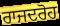
ਰਾਜਦਰੋਹ